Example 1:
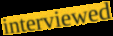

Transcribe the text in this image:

interviewed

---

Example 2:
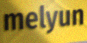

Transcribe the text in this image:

melyun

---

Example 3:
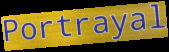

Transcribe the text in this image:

Portrayal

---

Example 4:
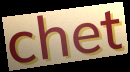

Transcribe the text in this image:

chet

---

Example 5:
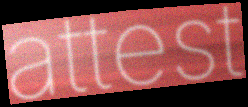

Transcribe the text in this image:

attest